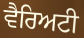
ਵੈਰਿਅਟੀ